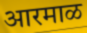
आरमाळ